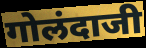
गोलंदाजी